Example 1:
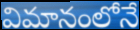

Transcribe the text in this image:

విమానంలోనే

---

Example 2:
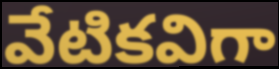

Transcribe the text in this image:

వేటికవిగా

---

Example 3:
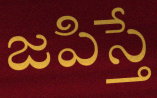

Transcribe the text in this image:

జపిస్తే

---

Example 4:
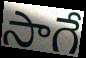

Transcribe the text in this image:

సాగే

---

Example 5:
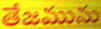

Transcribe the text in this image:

తేజమును